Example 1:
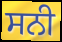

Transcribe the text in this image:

ਸਨੀ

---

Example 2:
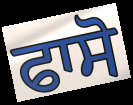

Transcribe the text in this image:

ਫਾਸੋ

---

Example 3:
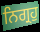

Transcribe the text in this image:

ਨਿਗ੍ਰਹੁ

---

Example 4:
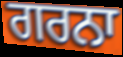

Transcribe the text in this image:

ਗਰਨਾ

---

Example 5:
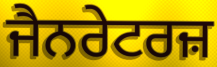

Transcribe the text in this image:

ਜੈਨਰੇਟਰਜ਼